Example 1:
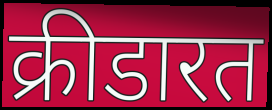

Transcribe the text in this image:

क्रीडारत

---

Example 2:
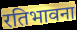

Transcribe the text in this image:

रतिभावना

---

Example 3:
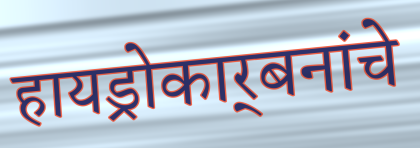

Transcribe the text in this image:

हायड्रोकार्बनांचे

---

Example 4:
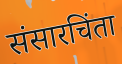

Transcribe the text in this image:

संसारचिंता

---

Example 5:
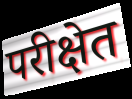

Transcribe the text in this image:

परीक्षेत